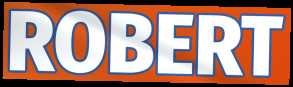
ROBERT